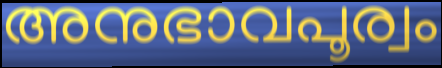
അനുഭാവപൂര്വം